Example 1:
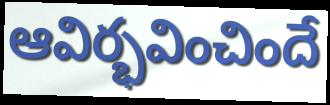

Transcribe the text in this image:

ఆవిర్భవించిందే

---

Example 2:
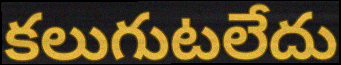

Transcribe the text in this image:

కలుగుటలేదు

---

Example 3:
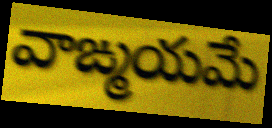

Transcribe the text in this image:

వాఙ్మయమే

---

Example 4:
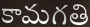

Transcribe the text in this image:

కామగతి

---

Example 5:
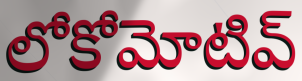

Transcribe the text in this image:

లోకోమోటివ్